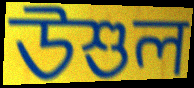
উশুল